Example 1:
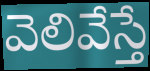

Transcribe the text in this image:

వెలివేస్తే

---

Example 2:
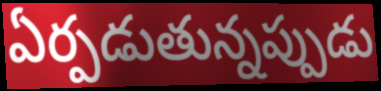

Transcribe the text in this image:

ఏర్పడుతున్నప్పుడు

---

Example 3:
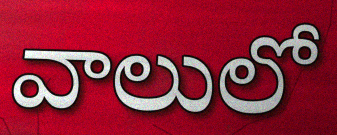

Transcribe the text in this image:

వాలులో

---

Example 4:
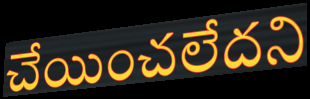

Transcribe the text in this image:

చేయించలేదని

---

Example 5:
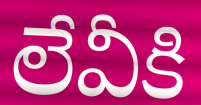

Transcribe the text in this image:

లేవీకి